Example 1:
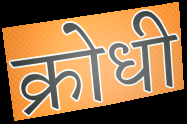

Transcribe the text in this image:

क्रोधी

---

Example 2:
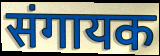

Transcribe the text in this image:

संगायक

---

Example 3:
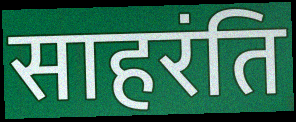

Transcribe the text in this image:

साहरंति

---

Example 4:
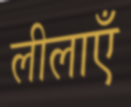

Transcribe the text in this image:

लीलाएँ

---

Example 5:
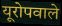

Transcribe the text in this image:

यूरोपवाले